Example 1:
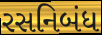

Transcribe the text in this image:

રસનિબંધ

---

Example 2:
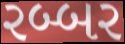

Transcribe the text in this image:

રબ્બર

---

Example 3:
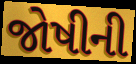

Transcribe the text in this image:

જોષીની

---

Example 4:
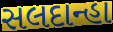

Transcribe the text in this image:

સલદાન્હા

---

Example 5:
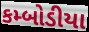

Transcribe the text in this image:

કમ્બોડીયા